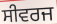
ਸੀਵਰਜ